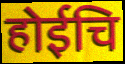
होईचि